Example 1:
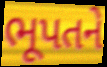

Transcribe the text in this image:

ભૂપતને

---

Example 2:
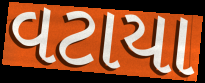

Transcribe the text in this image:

વટાયા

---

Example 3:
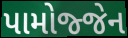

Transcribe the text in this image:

પામોજ્જેન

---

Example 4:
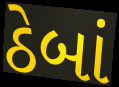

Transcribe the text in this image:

ઠેબાં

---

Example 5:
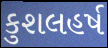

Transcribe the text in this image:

કુશલહર્ષ